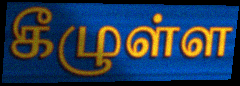
கீழுள்ள